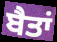
ਬੈਤਾਂ